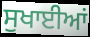
ਸੁਖਾਈਆਂ